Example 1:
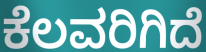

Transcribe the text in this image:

ಕೆಲವರಿಗಿದೆ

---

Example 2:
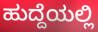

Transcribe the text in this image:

ಹುದ್ದೆಯಲ್ಲಿ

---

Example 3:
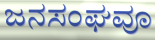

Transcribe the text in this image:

ಜನಸಂಘವೂ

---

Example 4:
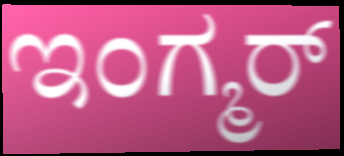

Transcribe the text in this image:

ಇಂಗ್ಮರ್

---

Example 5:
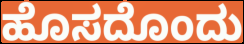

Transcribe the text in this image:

ಹೊಸದೊಂದು